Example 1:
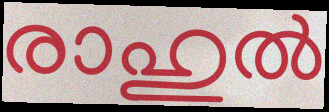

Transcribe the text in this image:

രാഹുൽ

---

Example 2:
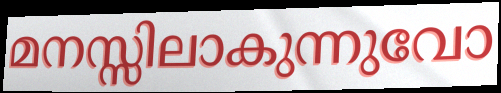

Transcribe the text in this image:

മനസ്സിലാകുന്നുവോ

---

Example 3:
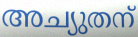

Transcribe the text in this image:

അച്യുതന്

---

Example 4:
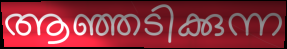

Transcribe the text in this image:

ആഞ്ഞടിക്കുന്ന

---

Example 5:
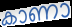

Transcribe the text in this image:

കാണാ